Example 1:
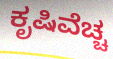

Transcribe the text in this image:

ಕೃಷಿವೆಚ್ಚ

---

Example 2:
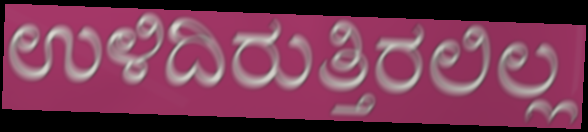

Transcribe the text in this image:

ಉಳಿದಿರುತ್ತಿರಲಿಲ್ಲ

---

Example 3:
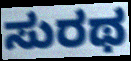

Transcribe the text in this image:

ಸುರಥ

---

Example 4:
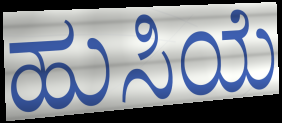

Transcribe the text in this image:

ಹುಸಿಯೆ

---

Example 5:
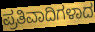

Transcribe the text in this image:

ಪ್ರತಿವಾದಿಗಳಾದ